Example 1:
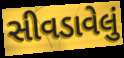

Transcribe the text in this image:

સીવડાવેલું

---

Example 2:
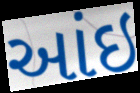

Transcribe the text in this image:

આંઇ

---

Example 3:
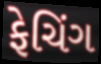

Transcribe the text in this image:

ફેચિંગ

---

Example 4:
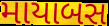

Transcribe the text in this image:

માયાબસ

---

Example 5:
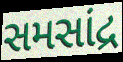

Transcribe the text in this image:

સમસાંદ્ર